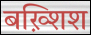
बख़्शिश